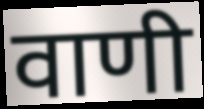
वाणी